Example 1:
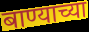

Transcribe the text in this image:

बाण्याच्या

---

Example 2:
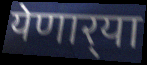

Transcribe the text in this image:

येणार्‍या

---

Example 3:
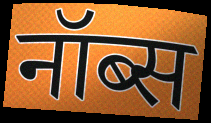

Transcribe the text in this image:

नॉब्स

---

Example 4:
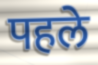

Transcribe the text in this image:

पहले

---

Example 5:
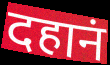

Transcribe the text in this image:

दहानं